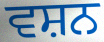
ਵਸ਼ਨ